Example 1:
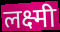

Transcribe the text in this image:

लक्ष्मी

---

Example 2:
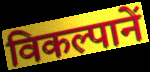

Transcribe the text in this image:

विकल्पानें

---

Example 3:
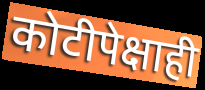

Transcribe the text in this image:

कोटीपेक्षाही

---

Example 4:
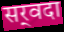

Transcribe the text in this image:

सर्वदा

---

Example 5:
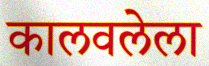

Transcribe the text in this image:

कालवलेला